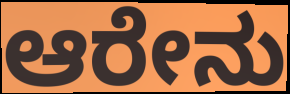
ಆರೇನು